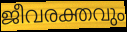
ജീവരക്തവും